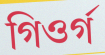
গিওৰ্গ